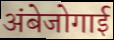
अंबेजोगाई